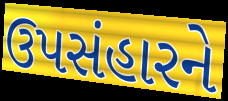
ઉપસંહારને